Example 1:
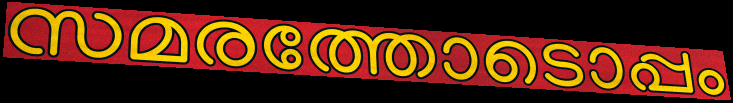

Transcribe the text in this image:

സമരത്തോടൊപ്പം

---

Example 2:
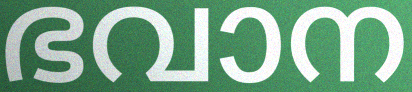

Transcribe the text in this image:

ഭവാന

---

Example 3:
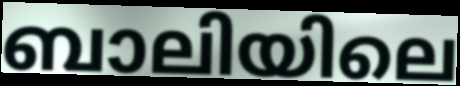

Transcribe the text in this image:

ബാലിയിലെ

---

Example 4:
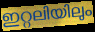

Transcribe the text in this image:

ഇറ്റലിയിലും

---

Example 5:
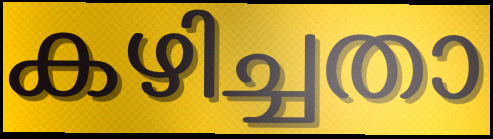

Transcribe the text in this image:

കഴിച്ചതാ